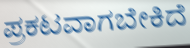
ಪ್ರಕಟವಾಗಬೇಕಿದೆ